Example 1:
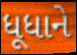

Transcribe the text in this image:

ધૂધાને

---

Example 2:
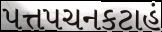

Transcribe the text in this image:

પત્તપચનકટાહં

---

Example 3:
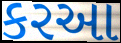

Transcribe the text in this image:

કરઆ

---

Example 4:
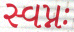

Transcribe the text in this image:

સ્વપ્નઃ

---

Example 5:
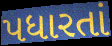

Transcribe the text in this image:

પધારતાં